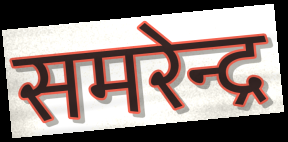
समरेन्द्र